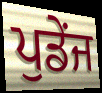
ਪੁਡੇਂਜ